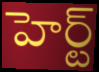
హెర్ట్